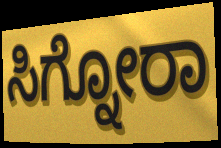
ಸಿಗ್ನೋರಾ